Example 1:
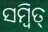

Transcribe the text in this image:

ସମ୍ବିତ୍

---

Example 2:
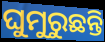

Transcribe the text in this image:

ଘୁମୁରୁଛନ୍ତି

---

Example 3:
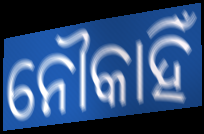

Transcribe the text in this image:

ନୌକାହିଁ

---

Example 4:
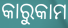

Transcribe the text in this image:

କାରୁକାମ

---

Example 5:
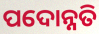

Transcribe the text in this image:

ପଦୋନ୍ନତି